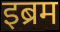
इब्रम